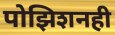
पोझिशनही